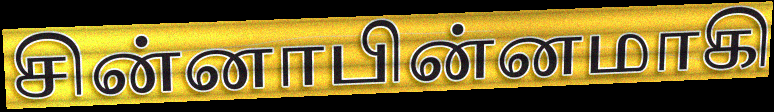
சின்னாபின்னமாகி